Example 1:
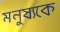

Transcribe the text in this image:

মনুষ্যকে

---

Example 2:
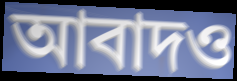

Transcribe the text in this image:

আবাদও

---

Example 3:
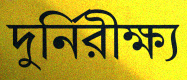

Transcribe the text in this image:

দুর্নিরীক্ষ্য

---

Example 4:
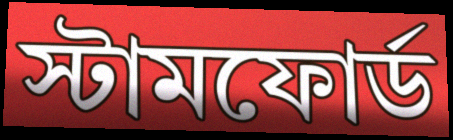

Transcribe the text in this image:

স্টামফোর্ড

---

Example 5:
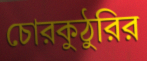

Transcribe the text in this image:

চোরকুঠুরির